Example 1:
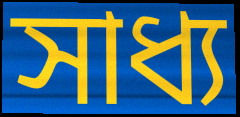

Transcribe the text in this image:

সাধ্য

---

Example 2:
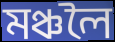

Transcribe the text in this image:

মঞ্চলৈ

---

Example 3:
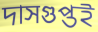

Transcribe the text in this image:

দাসগুপ্তই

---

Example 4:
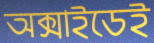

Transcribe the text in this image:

অক্সাইডেই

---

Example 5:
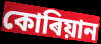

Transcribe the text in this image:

কোৰিয়ান